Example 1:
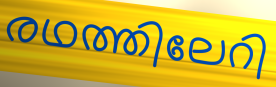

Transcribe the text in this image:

രഥത്തിലേറി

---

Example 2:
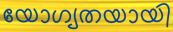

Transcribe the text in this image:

യോഗ്യതയായി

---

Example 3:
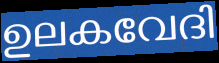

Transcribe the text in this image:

ഉലകവേദി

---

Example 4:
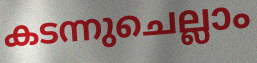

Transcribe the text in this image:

കടന്നുചെല്ലാം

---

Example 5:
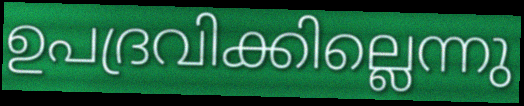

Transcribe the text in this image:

ഉപദ്രവിക്കില്ലെന്നു